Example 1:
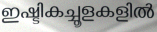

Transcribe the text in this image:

ഇഷ്ടികച്ചൂളകളിൽ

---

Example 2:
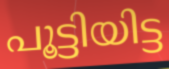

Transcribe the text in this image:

പൂട്ടിയിട്ട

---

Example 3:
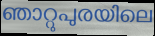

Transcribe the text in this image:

ഞാറ്റുപുരയിലെ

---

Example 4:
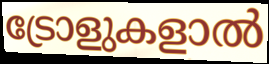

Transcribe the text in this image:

ട്രോളുകളാൽ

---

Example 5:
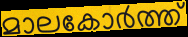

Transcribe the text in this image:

മാലകോർത്ത്